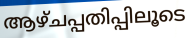
ആഴ്ചപ്പതിപ്പിലൂടെ